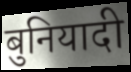
बुनियादी